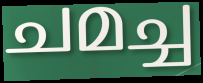
ചമച്ച